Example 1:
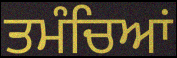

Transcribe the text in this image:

ਤਮੰਚਿਆਂ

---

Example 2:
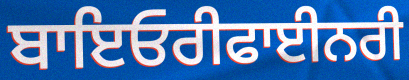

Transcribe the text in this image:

ਬਾਇਓਰੀਫਾਈਨਰੀ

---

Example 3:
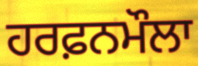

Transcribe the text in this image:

ਹਰਫ਼ਨਮੌਲਾ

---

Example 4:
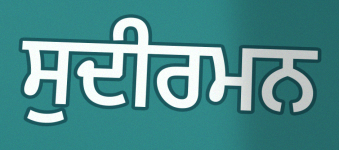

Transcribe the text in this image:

ਸੁਦੀਰਮਨ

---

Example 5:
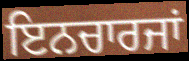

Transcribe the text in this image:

ਇਨਚਾਰਜਾਂ